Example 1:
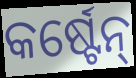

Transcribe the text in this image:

କର୍ଷ୍ଟେନ୍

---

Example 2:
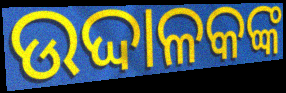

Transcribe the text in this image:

ଉଦ୍ଦାଳକଙ୍କ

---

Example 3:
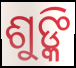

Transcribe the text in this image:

ଶୁଙ୍କି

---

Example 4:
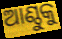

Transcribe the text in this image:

ଆଣ୍ଠୁକୁ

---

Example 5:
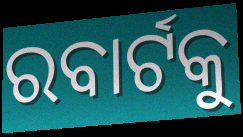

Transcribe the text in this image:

ରବାର୍ଟକୁ